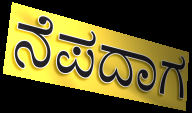
ನೆಪದಾಗ